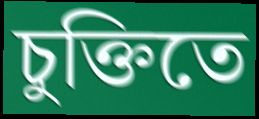
চুক্তিতে